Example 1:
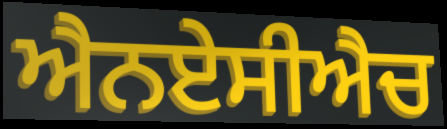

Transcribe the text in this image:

ਐਨਏਸੀਐਚ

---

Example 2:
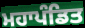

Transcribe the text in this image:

ਮਹਾਪੰਡਿਤ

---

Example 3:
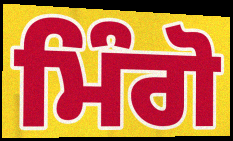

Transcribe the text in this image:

ਮਿੰਗੋ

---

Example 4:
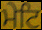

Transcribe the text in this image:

ਮੇਟਿ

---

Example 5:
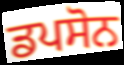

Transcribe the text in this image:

ਡਪਸੋਨ